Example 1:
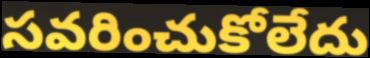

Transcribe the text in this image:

సవరించుకోలేదు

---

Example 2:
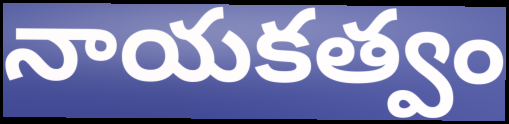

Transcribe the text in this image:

నాయకత్వం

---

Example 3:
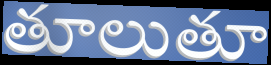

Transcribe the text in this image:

తూలుతూ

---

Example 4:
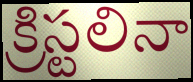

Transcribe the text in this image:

క్రిస్టలినా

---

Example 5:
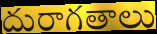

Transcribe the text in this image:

దురాగతాలు